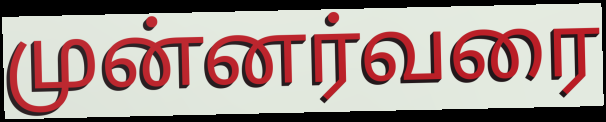
முன்னர்வரை